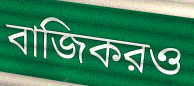
বাজিকরও